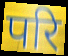
परि